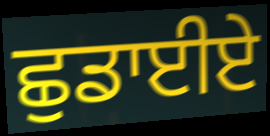
ਛੁਡਾਈਏ